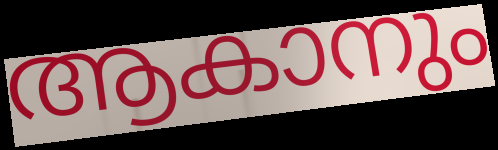
ആകാനും